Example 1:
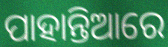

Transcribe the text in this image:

ପାହାନ୍ତିଆରେ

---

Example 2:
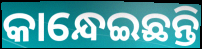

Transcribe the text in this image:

କାନ୍ଧେଇଛନ୍ତି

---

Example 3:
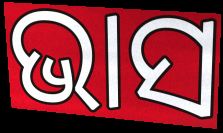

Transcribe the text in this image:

ଭାସ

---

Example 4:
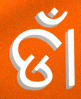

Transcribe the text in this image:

ଡାଁ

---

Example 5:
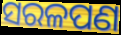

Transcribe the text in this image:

ସରଳପଣ